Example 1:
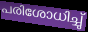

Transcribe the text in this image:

പരിശോധിച്ചു്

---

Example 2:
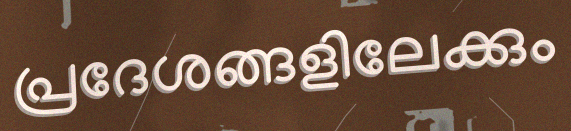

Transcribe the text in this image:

പ്രദേശങ്ങളിലേക്കും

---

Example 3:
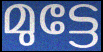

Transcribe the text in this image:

മുട്ടേ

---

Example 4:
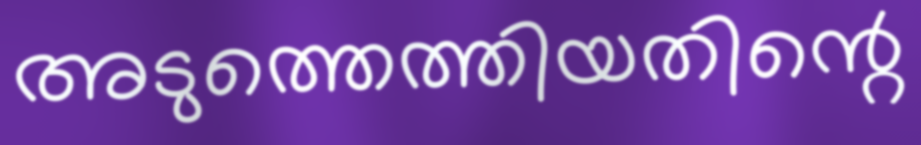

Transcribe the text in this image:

അടുത്തെത്തിയതിന്റെ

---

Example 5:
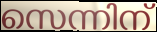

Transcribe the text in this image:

സെന്നിന്